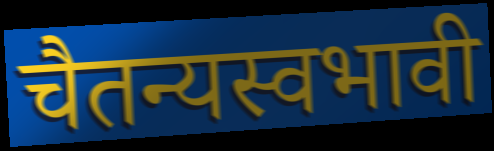
चैतन्यस्वभावी